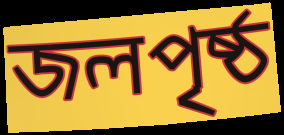
জলপৃষ্ঠ